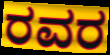
ರವರ